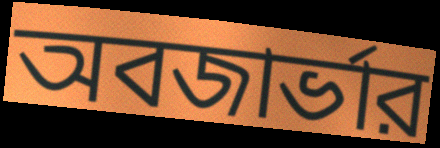
অবজার্ভার